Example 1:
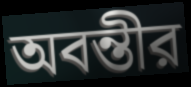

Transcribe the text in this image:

অবন্তীর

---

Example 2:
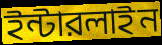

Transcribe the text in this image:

ইন্টারলাইন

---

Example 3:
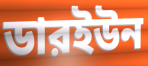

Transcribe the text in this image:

ডারইউন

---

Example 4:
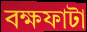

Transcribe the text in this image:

বক্ষফাটা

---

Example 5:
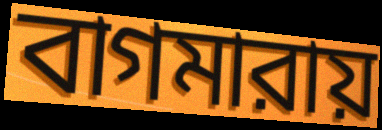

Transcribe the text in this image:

বাগমারায়